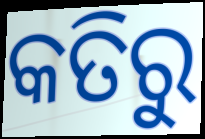
କତିରୁ